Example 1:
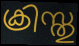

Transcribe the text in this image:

ക്രിസ്തു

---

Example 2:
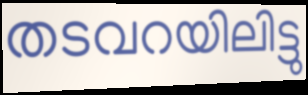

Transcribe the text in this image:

തടവറയിലിട്ടു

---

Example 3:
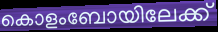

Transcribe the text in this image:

കൊളംബോയിലേക്ക്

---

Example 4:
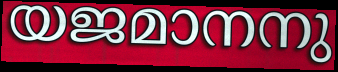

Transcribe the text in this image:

യജമാനനു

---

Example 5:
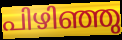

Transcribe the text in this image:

പിഴിഞ്ഞു